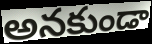
అనకుండా